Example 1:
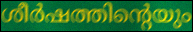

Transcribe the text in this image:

ശീർഷത്തിന്റെയും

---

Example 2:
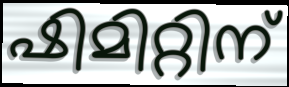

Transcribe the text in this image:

ഷിമിറ്റിന്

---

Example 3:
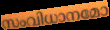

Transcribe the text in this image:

സംവിധാനമോ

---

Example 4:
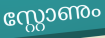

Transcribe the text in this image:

സ്റ്റോണും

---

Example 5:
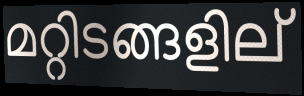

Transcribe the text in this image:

മറ്റിടങ്ങളില്